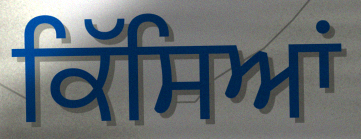
ਕਿੱਸਿਆਂ